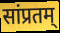
सांप्रतम्